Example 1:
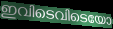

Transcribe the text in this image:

ഇവിടെവിടെയോ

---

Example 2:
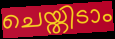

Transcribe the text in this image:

ചെയ്തിടാം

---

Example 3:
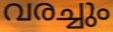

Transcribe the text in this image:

വരച്ചും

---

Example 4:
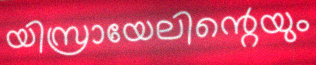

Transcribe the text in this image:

യിസ്രായേലിന്റെയും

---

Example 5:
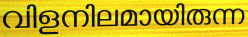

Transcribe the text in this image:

വിളനിലമായിരുന്ന